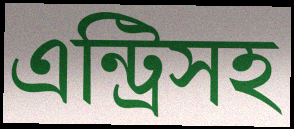
এন্ট্রিসহ